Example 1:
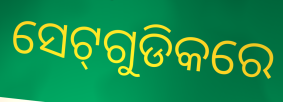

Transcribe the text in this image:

ସେଟ୍‌ଗୁଡିକରେ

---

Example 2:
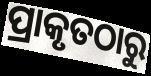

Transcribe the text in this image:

ପ୍ରାକୃତଠାରୁ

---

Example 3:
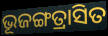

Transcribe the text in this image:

ଭୂଜଙ୍ଗତ୍ରାସିତ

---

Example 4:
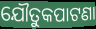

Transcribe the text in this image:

ଯୌତୁକପାଟଣା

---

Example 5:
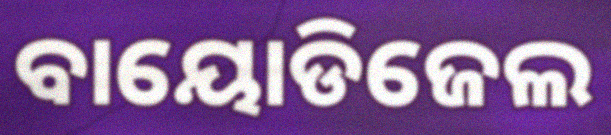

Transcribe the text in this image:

ବାୟୋଡିଜେଲ